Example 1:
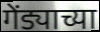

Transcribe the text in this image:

गेंड्याच्या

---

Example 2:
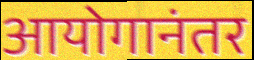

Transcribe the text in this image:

आयोगानंतर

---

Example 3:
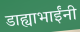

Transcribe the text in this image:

डाह्याभाईंनी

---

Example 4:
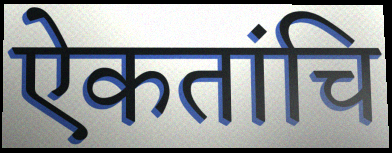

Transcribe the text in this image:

ऐकतांचि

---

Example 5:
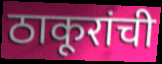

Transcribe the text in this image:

ठाकूरांची